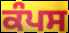
ਕੰਪਸ